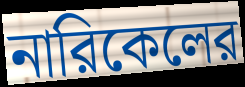
নারিকেলের